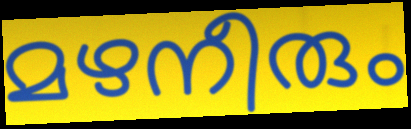
മഴനീരും